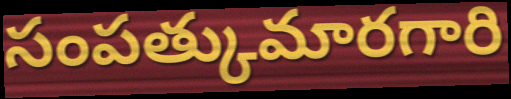
సంపత్కుమారగారి